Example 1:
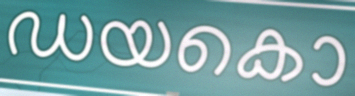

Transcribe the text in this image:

ഡയകൊ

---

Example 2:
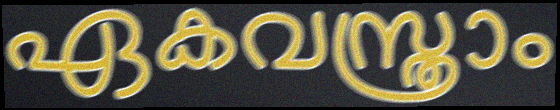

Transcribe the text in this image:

ഏകവസ്ത്രാം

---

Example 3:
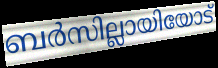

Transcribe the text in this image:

ബർസില്ലായിയോട്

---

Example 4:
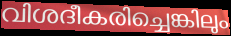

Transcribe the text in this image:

വിശദീകരിച്ചെങ്കിലും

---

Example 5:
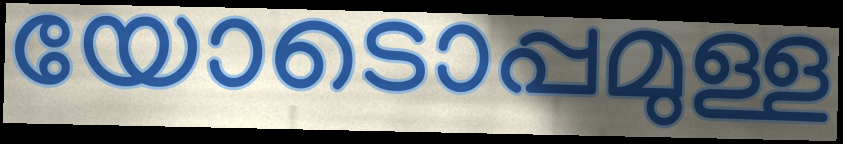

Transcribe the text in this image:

യോടൊപ്പമുള്ള